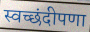
स्वच्छंदीपणा